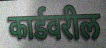
कार्डवरील